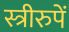
स्त्रीरुपें